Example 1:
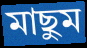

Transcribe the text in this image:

মাছুম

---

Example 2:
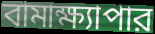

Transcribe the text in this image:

বামাক্ষ্যাপার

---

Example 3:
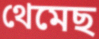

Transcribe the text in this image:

থেমেছ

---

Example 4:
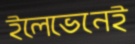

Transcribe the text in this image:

ইলেভেনেই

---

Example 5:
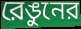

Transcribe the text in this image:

রেঙুনের